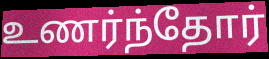
உணர்ந்தோர்